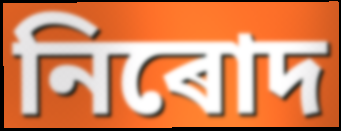
নিৰোদ